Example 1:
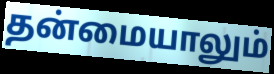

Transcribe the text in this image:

தன்மையாலும்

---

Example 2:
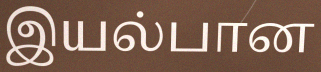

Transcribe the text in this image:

இயல்பான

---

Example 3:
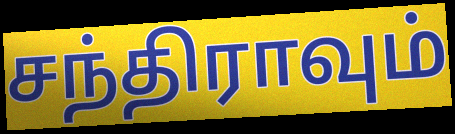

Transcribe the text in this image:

சந்திராவும்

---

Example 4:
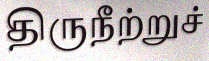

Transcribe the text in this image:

திருநீற்றுச்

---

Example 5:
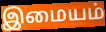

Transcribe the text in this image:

இமையம்